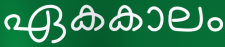
ഏകകാലം